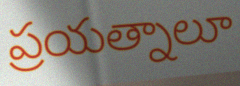
ప్రయత్నాలూ